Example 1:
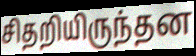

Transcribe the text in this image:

சிதறியிருந்தன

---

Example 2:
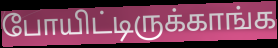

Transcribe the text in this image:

போயிட்டிருக்காங்க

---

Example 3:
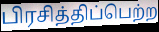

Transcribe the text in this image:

பிரசித்திப்பெற்ற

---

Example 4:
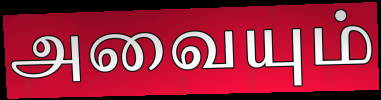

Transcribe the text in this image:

அவையும்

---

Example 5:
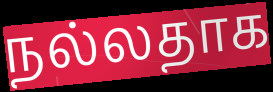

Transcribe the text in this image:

நல்லதாக